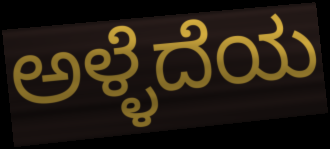
ಅಳ್ಳೆದೆಯ